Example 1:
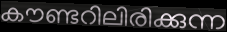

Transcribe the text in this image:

കൗണ്ടറിലിരിക്കുന്ന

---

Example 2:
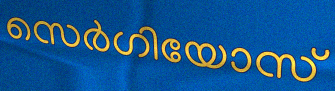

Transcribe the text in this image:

സെർഗിയോസ്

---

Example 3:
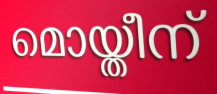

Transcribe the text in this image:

മൊയ്തീന്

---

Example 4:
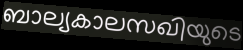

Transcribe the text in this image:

ബാല്യകാലസഖിയുടെ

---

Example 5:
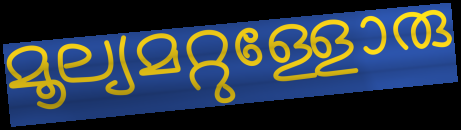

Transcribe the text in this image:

മൂല്യമറ്റുള്ളോരു